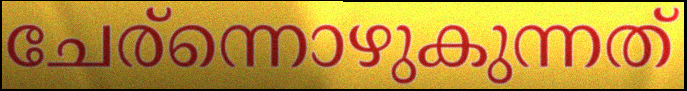
ചേര്ന്നൊഴുകുന്നത്